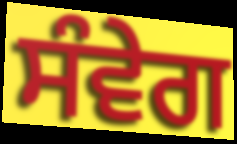
ਸੰਵੇਗ